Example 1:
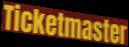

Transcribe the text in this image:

Ticketmaster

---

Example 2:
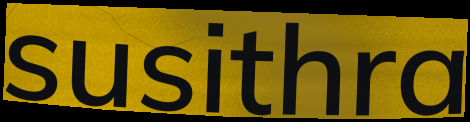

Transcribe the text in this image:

susithra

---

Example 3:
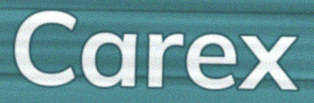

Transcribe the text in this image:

Carex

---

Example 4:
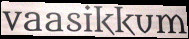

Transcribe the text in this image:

vaasikkum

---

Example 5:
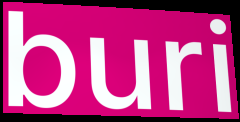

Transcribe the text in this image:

buri